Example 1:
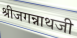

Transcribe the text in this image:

श्रीजगन्नाथजी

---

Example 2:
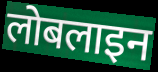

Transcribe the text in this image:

लोबलाइन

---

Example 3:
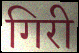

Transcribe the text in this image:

गिरी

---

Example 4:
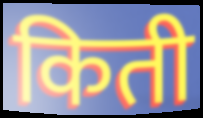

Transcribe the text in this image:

किती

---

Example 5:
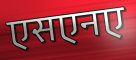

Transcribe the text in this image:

एसएनए